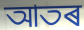
আতৰ